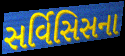
સર્વિસિસના